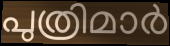
പുത്രിമാർ